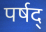
पर्षद्